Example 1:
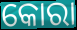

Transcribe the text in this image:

କୋରା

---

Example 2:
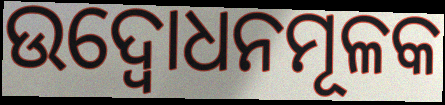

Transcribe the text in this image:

ଉଦ୍ବୋଧନମୂଳକ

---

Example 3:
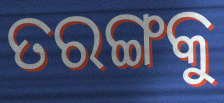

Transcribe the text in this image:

ତରଙ୍ଗକୁ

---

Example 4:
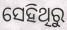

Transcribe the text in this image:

ସେହିଥିରୁ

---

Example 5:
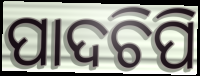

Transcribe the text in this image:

ପାଦଚିପି